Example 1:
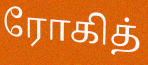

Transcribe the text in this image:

ரோகித்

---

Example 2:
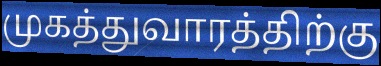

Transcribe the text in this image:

முகத்துவாரத்திற்கு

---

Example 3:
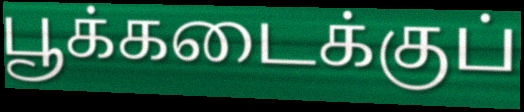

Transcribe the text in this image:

பூக்கடைக்குப்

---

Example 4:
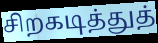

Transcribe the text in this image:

சிறகடித்துத்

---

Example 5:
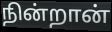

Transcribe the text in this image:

நின்றான்